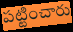
పట్టించారు